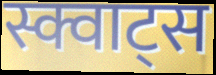
स्क्वाट्स